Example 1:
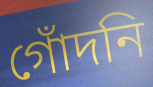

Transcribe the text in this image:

গোঁদনি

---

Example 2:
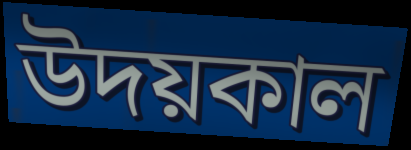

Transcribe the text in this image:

উদয়কাল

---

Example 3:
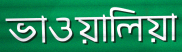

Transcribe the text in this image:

ভাওয়ালিয়া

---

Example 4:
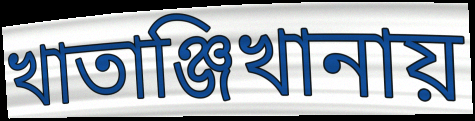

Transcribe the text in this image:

খাতাঞ্জিখানায়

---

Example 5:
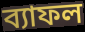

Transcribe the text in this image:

ব্যাফল